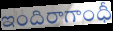
ఇందిరాగాంధీ